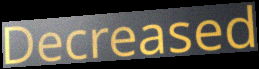
Decreased